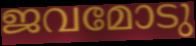
ജവമോടു